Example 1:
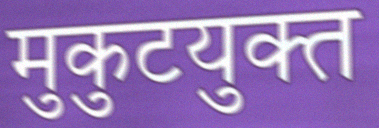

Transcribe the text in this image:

मुकुटयुक्त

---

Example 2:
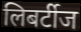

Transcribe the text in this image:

लिबर्टीज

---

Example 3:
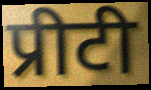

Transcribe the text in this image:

प्रीटी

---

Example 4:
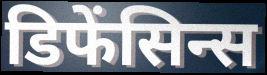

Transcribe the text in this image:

डिफेंसिन्स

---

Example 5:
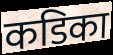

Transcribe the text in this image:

कडिका